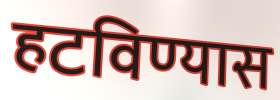
हटविण्यास